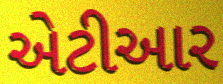
એટીઆર